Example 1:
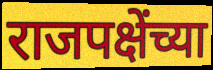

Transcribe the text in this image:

राजपक्षेंच्या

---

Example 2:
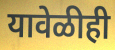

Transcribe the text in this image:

यावेळीही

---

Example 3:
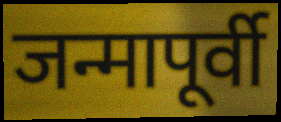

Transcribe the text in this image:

जन्मापूर्वी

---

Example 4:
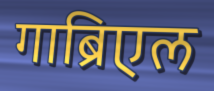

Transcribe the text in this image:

गाब्रिएल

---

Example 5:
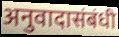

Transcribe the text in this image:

अनुवादासंबंधी